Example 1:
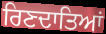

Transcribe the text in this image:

ਰਿਣਦਾਤਿਆਂ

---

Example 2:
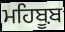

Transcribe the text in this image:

ਮਹਿਬ਼ੂਬ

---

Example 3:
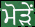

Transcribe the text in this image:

ਮੋੜੇਂ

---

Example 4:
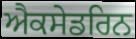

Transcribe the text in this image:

ਐਕਸੇਡਰਿਨ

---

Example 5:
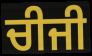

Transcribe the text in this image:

ਚੀਜੀ